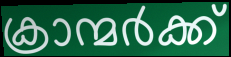
ക്രാന്മർക്ക്